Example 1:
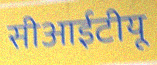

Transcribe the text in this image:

सीआईटीयू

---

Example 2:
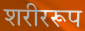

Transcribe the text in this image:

शरीररूप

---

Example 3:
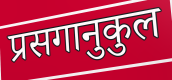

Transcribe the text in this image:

प्रसगानुकुल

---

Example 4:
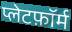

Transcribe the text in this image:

प्लेटफ़ॉर्म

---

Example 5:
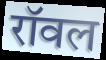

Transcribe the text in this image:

रॉवल